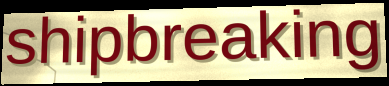
shipbreaking